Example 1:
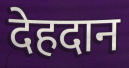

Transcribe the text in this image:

देहदान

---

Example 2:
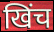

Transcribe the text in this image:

खिंच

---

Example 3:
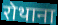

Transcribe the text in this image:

रोथाना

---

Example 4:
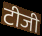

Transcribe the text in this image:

टीजी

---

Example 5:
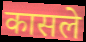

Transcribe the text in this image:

कासले